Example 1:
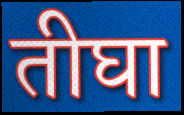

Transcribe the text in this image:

तीघा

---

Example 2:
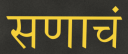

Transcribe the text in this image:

सणाचं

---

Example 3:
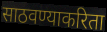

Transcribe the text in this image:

साठवण्याकरिता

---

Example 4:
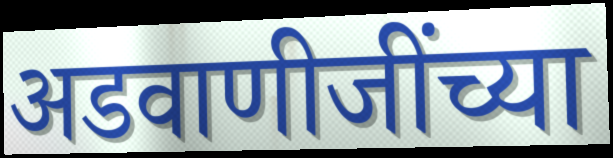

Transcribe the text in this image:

अडवाणीजींच्या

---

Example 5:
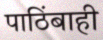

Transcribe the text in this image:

पाठिंबाही